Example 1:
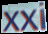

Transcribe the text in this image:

xxi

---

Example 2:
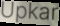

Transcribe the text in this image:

Upkar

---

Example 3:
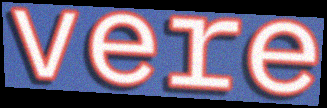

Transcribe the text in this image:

vere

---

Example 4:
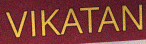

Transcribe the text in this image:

VIKATAN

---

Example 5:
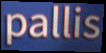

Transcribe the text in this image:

pallis